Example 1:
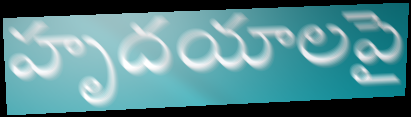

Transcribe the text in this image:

హృదయాలపై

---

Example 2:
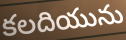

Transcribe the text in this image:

కలదియును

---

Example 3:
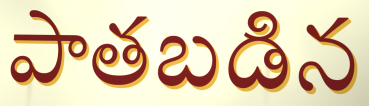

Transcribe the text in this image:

పాతబడిన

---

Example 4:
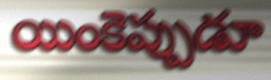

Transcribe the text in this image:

యింకెప్పుడూ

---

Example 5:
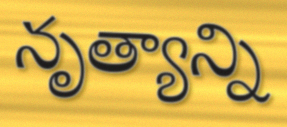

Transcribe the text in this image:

నృత్యాన్ని